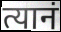
त्यानं